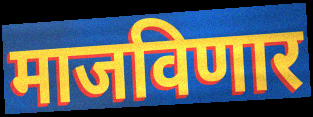
माजविणार